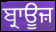
ਬ੍ਰਾਊਜ਼